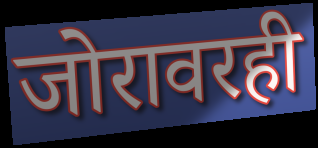
जोरावरही